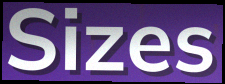
Sizes